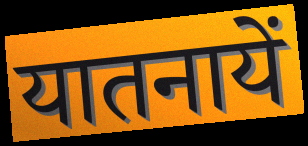
यातनायें